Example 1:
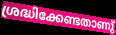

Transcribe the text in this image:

ശ്രദ്ധിക്കേണ്ടതാണു്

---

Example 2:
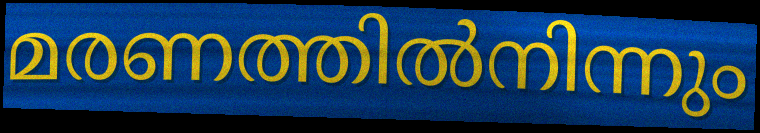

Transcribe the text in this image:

മരണത്തിൽനിന്നും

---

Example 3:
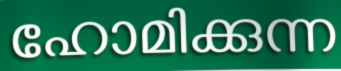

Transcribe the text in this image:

ഹോമിക്കുന്ന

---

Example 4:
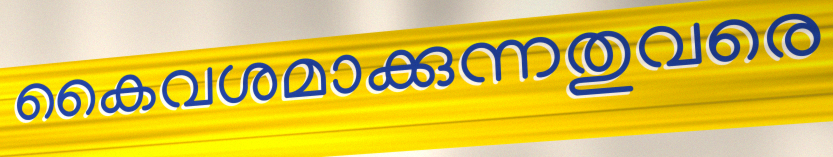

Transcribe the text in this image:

കൈവശമാക്കുന്നതുവരെ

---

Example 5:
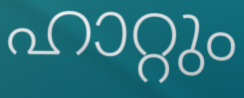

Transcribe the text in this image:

ഹാറ്റും